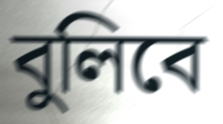
বুলিবে